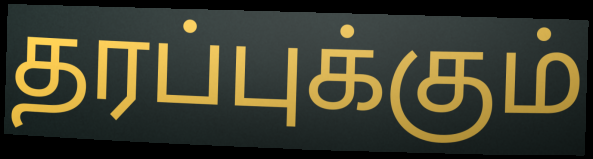
தரப்புக்கும்